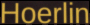
Hoerlin